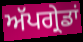
ਅੱਪਗ੍ਰੇਡਾਂ